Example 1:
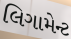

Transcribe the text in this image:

લિગામેન્ટ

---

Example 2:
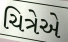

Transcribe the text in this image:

ચિત્રેએ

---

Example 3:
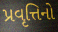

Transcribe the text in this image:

પ્રવૃત્તિનો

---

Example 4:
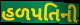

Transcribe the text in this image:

હળપતિની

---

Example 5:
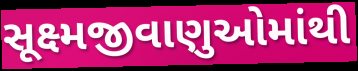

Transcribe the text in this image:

સૂક્ષ્મજીવાણુઓમાંથી